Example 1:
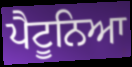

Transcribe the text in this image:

ਪੈਟੂਨਿਆ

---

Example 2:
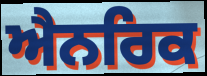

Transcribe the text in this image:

ਐਨਰਿਕ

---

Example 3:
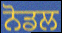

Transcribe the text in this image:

ਨੋਡਲ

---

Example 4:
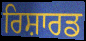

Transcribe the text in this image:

ਰਿਸ਼ਾਰਡ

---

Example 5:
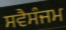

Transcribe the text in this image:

ਸਵੈਸੰਜਮ